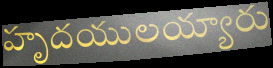
హృదయులయ్యారు